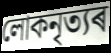
লোকনৃত্যৰ